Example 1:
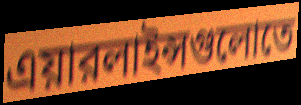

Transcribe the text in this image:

এয়ারলাইন্সগুলোতে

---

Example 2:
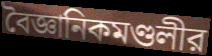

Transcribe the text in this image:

বৈজ্ঞানিকমণ্ডলীর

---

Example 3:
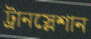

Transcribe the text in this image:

ট্রানস্লেশান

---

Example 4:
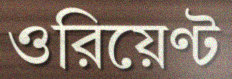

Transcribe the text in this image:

ওরিয়েণ্ট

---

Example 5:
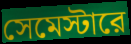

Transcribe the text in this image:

সেমেস্টারে